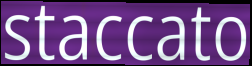
staccato